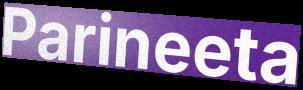
Parineeta